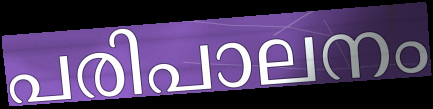
പരിപാലനം